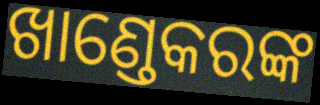
ଖାଣ୍ଡେକରଙ୍କ